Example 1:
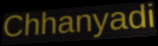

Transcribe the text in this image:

Chhanyadi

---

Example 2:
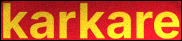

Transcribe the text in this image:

karkare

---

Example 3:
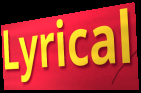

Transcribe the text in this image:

Lyrical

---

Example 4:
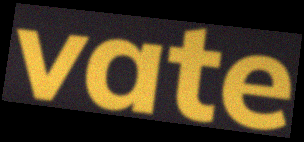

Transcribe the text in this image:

vate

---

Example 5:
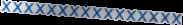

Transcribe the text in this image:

xxxxxxxxxxxxxxxx